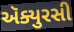
ઍક્યુરસી